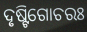
ଦୃଷ୍ଟିଗୋଚରଃ